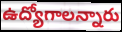
ఉద్యోగాలన్నారు